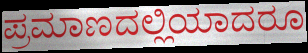
ಪ್ರಮಾಣದಲ್ಲಿಯಾದರೂ